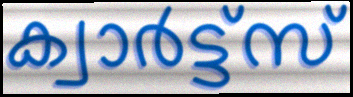
ക്വാർട്ട്സ്